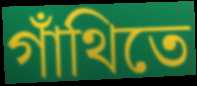
গাঁথিতে